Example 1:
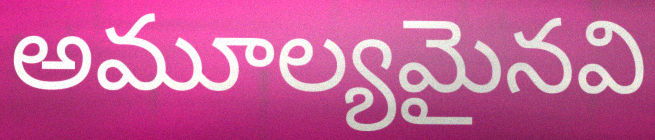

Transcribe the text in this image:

అమూల్యమైనవి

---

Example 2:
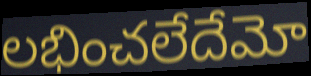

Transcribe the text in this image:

లభించలేదేమో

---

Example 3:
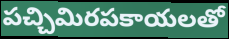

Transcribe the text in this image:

పచ్చిమిరపకాయలతో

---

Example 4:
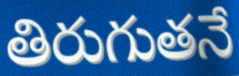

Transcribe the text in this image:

తిరుగుతనే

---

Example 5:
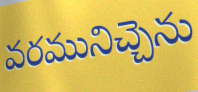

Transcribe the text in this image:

వరమునిచ్చెను